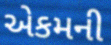
એકમની